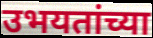
उभयतांच्या